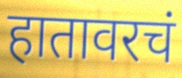
हातावरचं